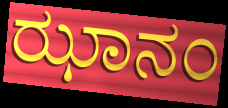
ಝಾನಂ